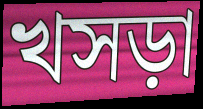
খসড়া